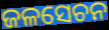
ଜଳସେଚନ